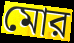
মোর